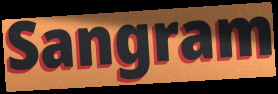
Sangram